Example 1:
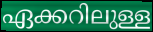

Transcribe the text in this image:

ഏക്കറിലുള്ള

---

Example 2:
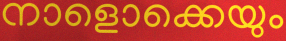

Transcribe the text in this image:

നാളൊക്കെയും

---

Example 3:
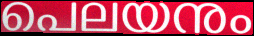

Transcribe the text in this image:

പെലയനും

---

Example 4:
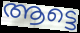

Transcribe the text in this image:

ആട്ടെ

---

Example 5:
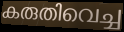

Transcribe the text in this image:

കരുതിവെച്ച